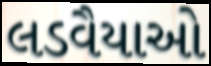
લડવૈયાઓ